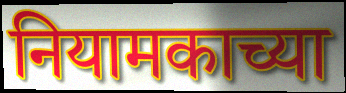
नियामकाच्या